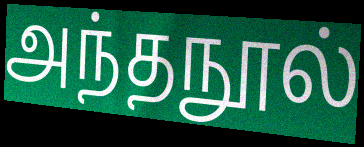
அந்தநூல்